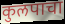
कुलपाचा